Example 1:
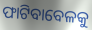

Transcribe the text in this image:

ଫାଟିବାବେଳକୁ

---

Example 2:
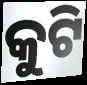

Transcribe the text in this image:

କୁଟି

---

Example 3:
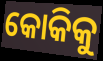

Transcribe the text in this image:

କୋକିକୁ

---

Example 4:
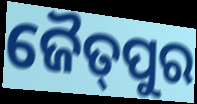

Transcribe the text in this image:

ଜୈତ୍‌ପୁର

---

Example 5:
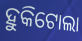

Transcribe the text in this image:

ହୁକିଟୋଲା